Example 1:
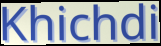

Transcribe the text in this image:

Khichdi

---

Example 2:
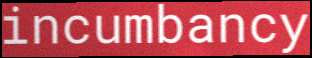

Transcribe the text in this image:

incumbancy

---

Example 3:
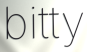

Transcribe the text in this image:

bitty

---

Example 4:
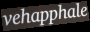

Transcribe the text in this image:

vehapphale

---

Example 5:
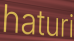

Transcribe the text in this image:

haturi